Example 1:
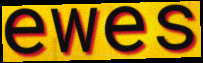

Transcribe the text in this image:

ewes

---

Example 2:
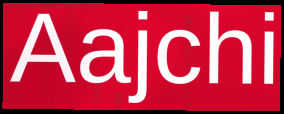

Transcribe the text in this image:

Aajchi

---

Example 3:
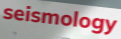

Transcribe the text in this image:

seismology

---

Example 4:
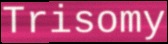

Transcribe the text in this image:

Trisomy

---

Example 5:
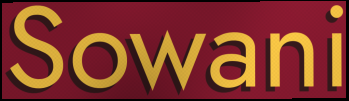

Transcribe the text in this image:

Sowani